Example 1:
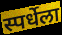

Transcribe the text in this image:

स्पर्धेला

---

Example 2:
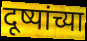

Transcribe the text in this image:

दूष्यांच्या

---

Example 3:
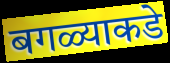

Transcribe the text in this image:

बगळ्याकडे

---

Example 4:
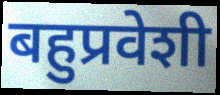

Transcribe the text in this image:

बहुप्रवेशी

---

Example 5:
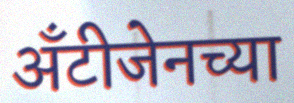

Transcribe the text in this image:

अँटीजेनच्या